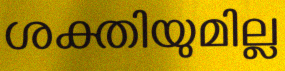
ശക്തിയുമില്ല